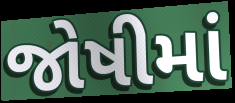
જોષીમાં